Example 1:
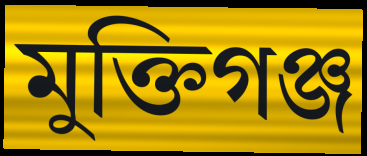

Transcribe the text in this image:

মুক্তিগঞ্জ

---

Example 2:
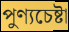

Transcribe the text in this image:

পুণ্যচেষ্টা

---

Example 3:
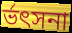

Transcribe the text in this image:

র্ভৎসনা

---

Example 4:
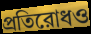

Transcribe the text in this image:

প্রতিরোধও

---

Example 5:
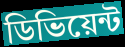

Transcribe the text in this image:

ডিভিয়েন্ট